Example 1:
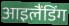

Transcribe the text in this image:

आइलैंडिंग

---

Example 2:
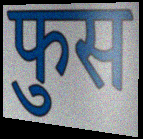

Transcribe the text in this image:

फुस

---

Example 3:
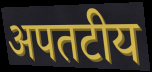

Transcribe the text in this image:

अपतटीय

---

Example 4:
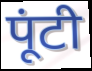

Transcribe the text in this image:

पूंटी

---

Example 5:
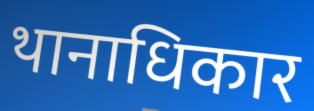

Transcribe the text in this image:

थानाधिकार